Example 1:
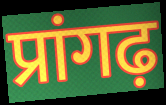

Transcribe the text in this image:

प्रांगढ़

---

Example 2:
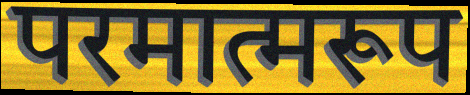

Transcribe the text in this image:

परमात्मरूप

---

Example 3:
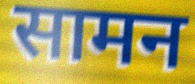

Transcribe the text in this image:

सामन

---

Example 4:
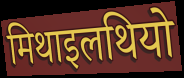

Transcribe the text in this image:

मिथाइलथियो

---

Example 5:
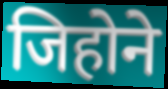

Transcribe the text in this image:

जिहोने